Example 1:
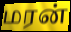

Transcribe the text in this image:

மரன்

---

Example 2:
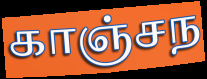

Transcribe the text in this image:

காஞ்சந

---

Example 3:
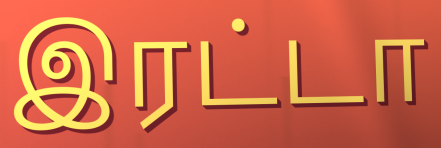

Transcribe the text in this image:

இரட்டா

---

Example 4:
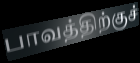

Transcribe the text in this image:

பாவத்திற்குச்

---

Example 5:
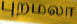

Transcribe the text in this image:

புறமலா